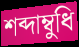
শব্দাম্বুধি